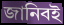
জানিবই